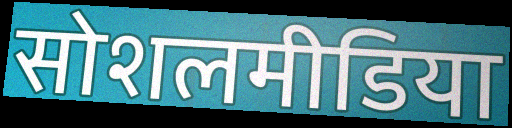
सोशलमीडिया